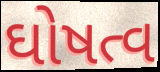
ઘોષત્વ